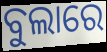
ବୁଲାରେ